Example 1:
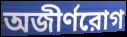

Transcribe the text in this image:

অজীর্ণরোগ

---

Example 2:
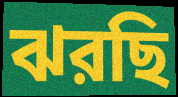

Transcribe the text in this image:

ঝরছি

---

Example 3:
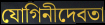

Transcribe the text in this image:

যোগিনীদেবতা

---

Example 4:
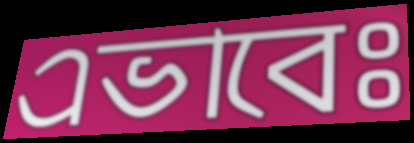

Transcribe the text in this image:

এভাবেঃ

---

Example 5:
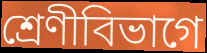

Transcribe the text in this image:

শ্রেণীবিভাগে